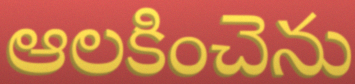
ఆలకించెను